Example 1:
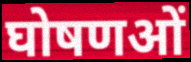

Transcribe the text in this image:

घोषणओं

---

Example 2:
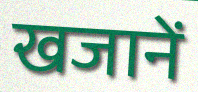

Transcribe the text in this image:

खजानें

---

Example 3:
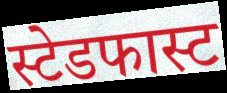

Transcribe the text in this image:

स्टेडफास्ट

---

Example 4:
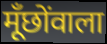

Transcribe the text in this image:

मूँछोंवाला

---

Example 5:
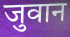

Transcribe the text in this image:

जुवान